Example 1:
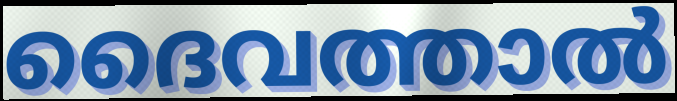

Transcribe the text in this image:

ദൈവത്താൽ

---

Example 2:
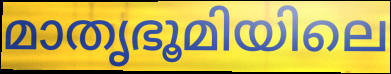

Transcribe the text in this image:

മാതൃഭൂമിയിലെ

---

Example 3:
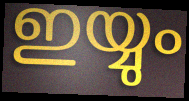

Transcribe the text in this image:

ഇയ്യും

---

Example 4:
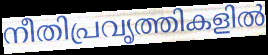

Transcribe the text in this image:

നീതിപ്രവൃത്തികളിൽ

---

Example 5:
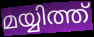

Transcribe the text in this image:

മയ്യിത്ത്